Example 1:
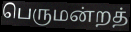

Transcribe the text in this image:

பெருமன்றத்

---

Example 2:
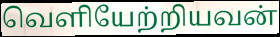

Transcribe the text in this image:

வெளியேற்றியவன்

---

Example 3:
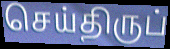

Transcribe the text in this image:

செய்திருப்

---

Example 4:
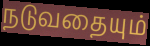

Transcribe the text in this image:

நடுவதையும்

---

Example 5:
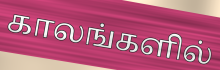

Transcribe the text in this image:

காலங்களில்